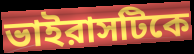
ভাইরাসটিকে